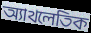
অ্যাথলেতিক